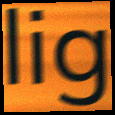
lig